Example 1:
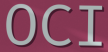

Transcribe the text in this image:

OCI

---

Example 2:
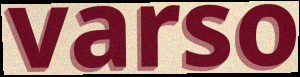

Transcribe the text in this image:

varso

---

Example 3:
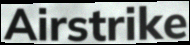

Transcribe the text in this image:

Airstrike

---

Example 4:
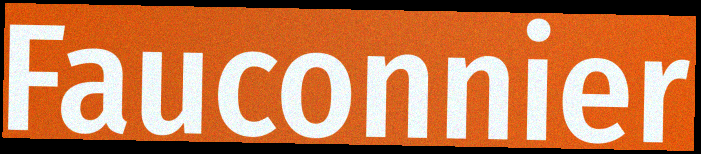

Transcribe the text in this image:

Fauconnier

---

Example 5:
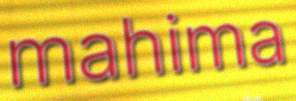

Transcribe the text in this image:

mahima